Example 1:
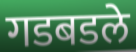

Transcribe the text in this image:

गडबडले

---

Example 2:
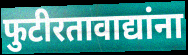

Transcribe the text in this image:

फुटीरतावाद्यांना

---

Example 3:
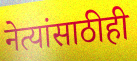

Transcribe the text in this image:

नेत्यांसाठीही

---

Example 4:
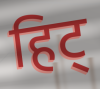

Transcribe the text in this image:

हिट्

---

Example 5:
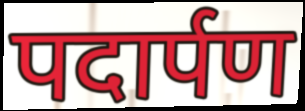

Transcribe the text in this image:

पदार्पण